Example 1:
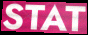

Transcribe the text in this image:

STAT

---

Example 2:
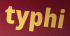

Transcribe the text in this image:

typhi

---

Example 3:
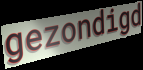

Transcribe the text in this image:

gezondigd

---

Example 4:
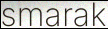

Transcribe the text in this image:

smarak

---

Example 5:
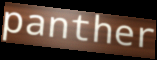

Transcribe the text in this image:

panther